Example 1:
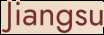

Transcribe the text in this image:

Jiangsu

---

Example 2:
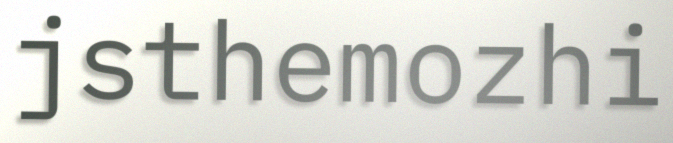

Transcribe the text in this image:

jsthemozhi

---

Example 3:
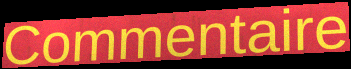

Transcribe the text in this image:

Commentaire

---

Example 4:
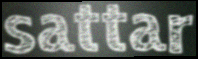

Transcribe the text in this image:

sattar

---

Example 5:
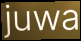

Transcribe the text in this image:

juwa